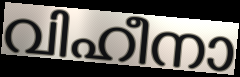
വിഹീനാ